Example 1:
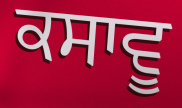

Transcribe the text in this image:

ਕਸਾਵੂ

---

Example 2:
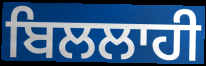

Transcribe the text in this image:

ਬਿਲਲਾਹੀ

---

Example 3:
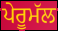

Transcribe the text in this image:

ਪੇਰੂਮੱਲ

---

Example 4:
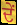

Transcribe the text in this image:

ਦੇਂ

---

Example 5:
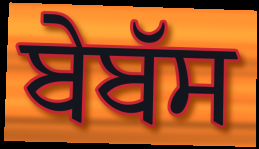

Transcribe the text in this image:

ਬੇਬੱਸ